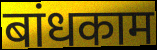
बांधकाम